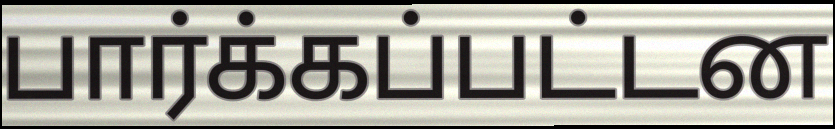
பார்க்கப்பட்டன